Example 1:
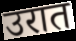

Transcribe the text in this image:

उरात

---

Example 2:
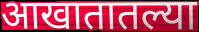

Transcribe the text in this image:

आखातातल्या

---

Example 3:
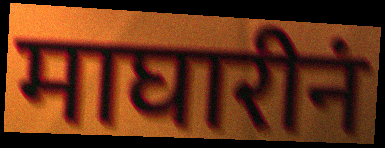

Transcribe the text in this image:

माघारीनं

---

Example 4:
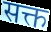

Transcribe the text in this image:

सक्त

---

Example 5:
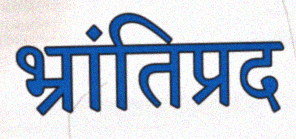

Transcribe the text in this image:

भ्रांतिप्रद